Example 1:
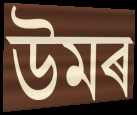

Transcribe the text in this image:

উমৰ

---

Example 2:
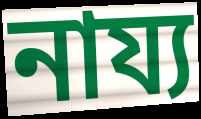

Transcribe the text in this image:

নায্য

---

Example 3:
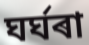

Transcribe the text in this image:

ঘৰ্ঘৰা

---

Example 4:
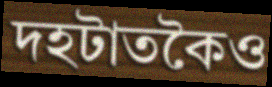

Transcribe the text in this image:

দহটাতকৈও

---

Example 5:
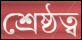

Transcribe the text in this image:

শ্ৰেষ্ঠত্ব